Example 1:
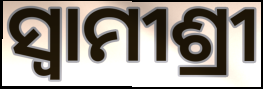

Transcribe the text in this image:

ସ୍ଵାମୀଶ୍ରୀ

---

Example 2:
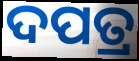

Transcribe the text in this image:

ଦପତ୍ର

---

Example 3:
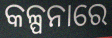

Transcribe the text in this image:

କଳ୍ପନାରେ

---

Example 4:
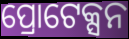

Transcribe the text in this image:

ପ୍ରୋଟେକ୍ସନ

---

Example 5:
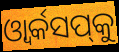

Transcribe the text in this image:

ଓ୍ୱାର୍କସପ୍‌କୁ